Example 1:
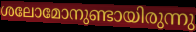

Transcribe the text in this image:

ശലോമോനുണ്ടായിരുന്നു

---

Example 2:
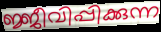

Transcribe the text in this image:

ജ്ജീവിപ്പിക്കുന്ന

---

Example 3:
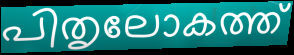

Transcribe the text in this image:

പിതൃലോകത്ത്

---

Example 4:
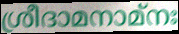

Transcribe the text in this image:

ശ്രീദാമനാമ്നഃ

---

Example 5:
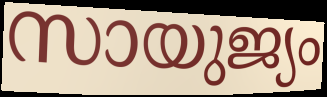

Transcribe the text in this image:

സായുജ്യം